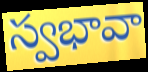
స్వభావా